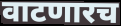
वाटणारच